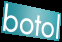
botol